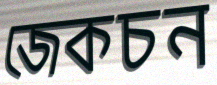
জেকচন